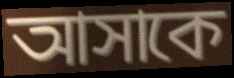
আসাকে